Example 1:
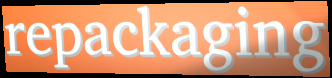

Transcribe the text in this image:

repackaging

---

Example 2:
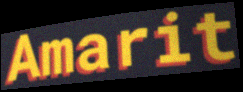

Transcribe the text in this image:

Amarit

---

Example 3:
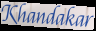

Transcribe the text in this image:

Khandakar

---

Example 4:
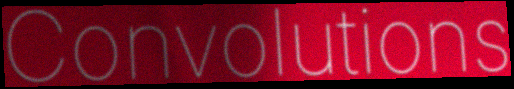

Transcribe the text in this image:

Convolutions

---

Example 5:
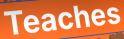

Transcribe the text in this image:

Teaches